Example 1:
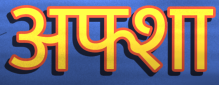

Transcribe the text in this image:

अफ्शा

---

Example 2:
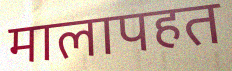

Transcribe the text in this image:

मालापहत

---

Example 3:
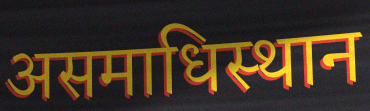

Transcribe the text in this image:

असमाधिस्थान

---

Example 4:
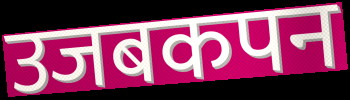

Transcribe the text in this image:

उजबकपन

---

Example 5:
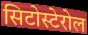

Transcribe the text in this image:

सिटोस्टेरोल